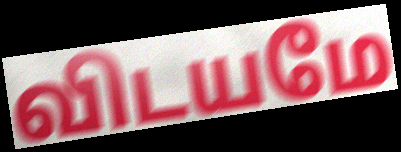
விடயமே